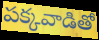
పక్కవాడితో